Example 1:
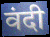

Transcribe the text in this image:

वंदी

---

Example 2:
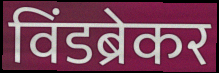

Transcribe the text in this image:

विंडब्रेकर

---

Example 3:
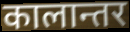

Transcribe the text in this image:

कालान्तर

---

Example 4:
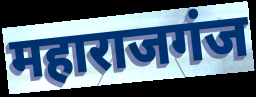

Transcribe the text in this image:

महाराजगंज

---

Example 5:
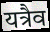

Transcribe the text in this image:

यत्रैव